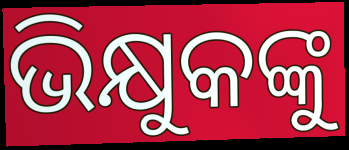
ଭିକ୍ଷୁକଙ୍କୁ